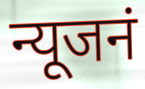
न्यूजनं